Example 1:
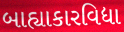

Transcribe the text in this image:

બાહ્યાકારવિદ્યા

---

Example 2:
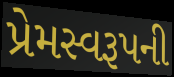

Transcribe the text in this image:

પ્રેમસ્વરૂપની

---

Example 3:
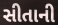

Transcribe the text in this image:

સીતાની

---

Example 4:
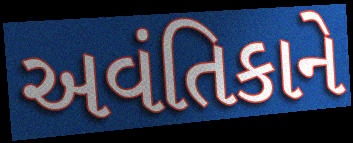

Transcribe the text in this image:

અવંતિકાને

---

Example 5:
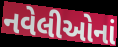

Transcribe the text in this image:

નવેલીઓનાં